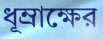
ধূম্রাক্ষের